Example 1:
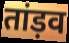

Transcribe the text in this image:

तांड़व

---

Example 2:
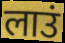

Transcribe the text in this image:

लाउं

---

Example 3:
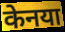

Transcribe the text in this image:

केनया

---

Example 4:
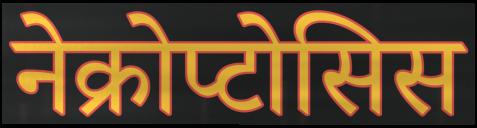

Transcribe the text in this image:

नेक्रोप्टोसिस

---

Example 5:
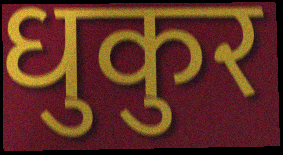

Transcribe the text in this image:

धुकुर